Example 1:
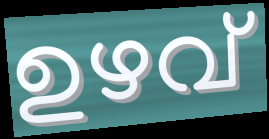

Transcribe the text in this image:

ഉഴവ്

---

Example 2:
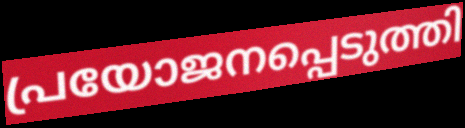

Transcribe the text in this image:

പ്രയോജനപ്പെടുത്തി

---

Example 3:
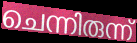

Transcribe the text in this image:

ചെന്നിരുന്ന്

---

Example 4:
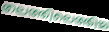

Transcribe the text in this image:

തലത്തിലെത്തിച്ച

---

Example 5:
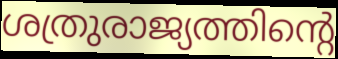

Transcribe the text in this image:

ശത്രുരാജ്യത്തിന്റെ